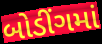
બોડીંગમાં